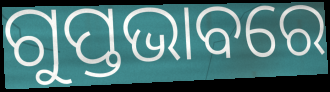
ଗୁପ୍ତଭାବରେ